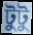
টুটু